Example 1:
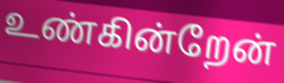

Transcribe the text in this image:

உண்கின்றேன்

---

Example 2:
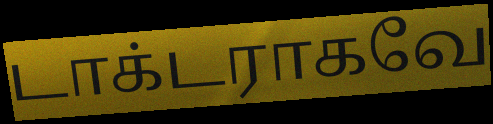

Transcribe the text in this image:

டாக்டராகவே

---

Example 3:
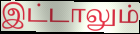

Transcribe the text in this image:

இட்டாலும்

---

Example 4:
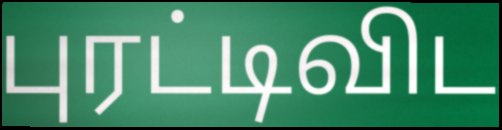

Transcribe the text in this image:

புரட்டிவிட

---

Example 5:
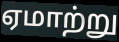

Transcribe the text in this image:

ஏமாற்று